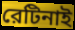
রেটিনাই